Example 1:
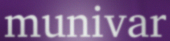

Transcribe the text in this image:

munivar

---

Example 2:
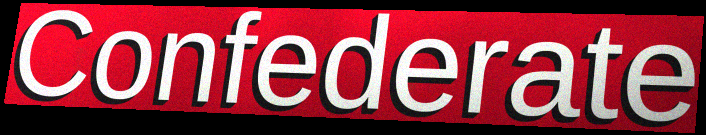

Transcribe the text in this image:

Confederate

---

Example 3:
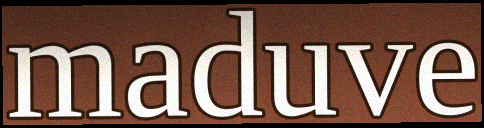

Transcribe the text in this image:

maduve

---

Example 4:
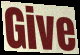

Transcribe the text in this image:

Give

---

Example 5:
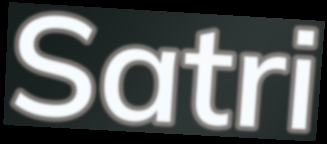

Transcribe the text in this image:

Satri